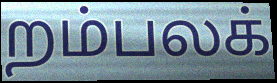
றம்பலக்